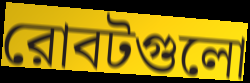
রোবটগুলো